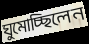
ঘুমোচ্ছিলেন